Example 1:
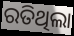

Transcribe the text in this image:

ରତିଥିଲା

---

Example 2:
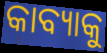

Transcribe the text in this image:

କାବ୍ୟାକୁ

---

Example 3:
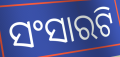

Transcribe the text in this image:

ସଂସାରଟି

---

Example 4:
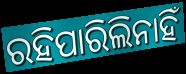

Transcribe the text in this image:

ରହିପାରିଲିନାହିଁ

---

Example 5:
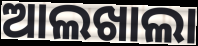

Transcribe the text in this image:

ଆଲଖାଲା